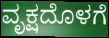
ವೃಕ್ಷದೊಳಗೆ